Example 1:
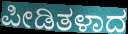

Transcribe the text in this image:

ಪೀಡಿತಳಾದ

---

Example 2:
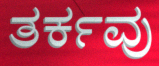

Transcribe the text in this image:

ತರ್ಕವು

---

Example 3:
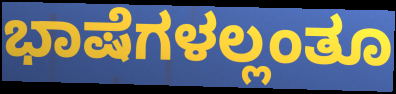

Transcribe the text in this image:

ಭಾಷೆಗಳಲ್ಲಂತೂ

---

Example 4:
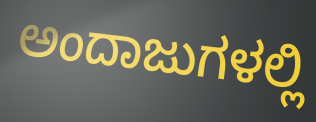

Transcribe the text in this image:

ಅಂದಾಜುಗಳಲ್ಲಿ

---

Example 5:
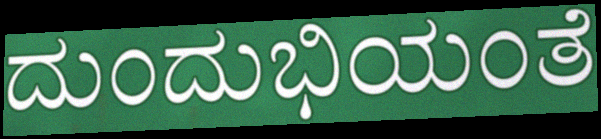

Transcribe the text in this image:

ದುಂದುಭಿಯಂತೆ